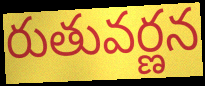
రుతువర్ణన